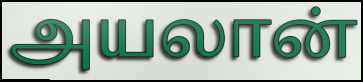
அயலான்